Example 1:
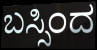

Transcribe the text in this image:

ಬಸ್ಸಿಂದ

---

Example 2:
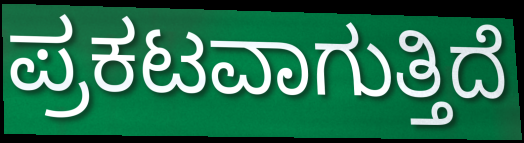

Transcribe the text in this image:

ಪ್ರಕಟವಾಗುತ್ತಿದೆ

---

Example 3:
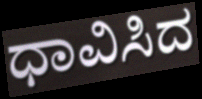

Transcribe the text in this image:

ಧಾವಿಸಿದ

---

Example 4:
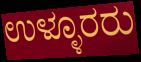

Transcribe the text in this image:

ಉಳ್ಳೂರರು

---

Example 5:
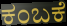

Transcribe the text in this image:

ಕಂಬಕೆ